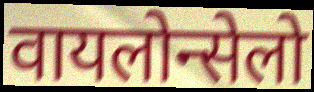
वायलोन्सेलो